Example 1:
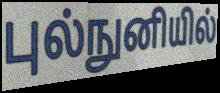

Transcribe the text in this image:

புல்நுனியில்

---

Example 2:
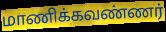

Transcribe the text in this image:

மாணிக்கவண்ணர்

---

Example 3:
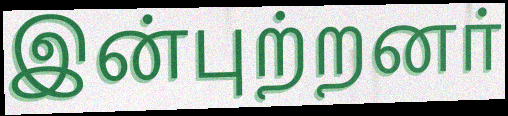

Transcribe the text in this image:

இன்புற்றனர்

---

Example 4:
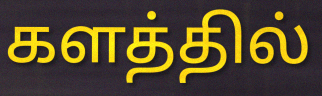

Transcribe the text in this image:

களத்தில்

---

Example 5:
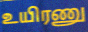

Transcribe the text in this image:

உயிரணு